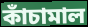
কাঁচামাল